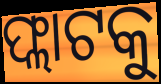
ଫ୍ଲାଟକୁ